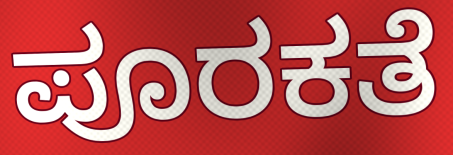
ಪೂರಕತೆ